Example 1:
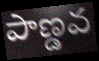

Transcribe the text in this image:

పాణ్డవ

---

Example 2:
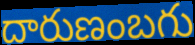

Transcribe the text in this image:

దారుణంబగు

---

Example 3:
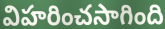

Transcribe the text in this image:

విహరించసాగింది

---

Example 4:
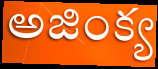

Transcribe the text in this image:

అజింక్య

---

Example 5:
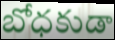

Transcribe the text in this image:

బోధకుడా